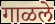
गाळले